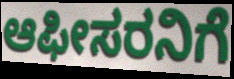
ಆಫೀಸರನಿಗೆ